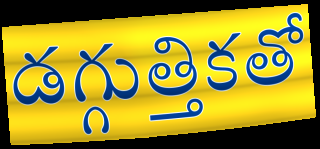
డగ్గుత్తికతో